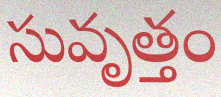
సువృత్తం